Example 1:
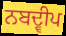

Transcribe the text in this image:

ਨਬਦ੍ਵੀਪ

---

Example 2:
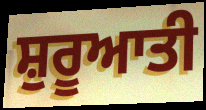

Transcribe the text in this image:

ਸ਼ੁਰੂਆਤੀ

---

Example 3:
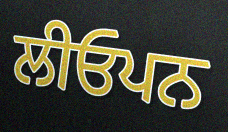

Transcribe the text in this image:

ਲੀਓਪਨ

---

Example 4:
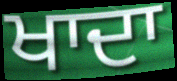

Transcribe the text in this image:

ਖਾਦਾ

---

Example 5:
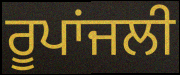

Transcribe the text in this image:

ਰੂਪਾਂਜਲੀ